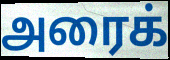
அரைக்